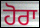
ਹੋਰਾ